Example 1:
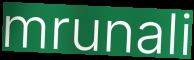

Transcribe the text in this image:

mrunali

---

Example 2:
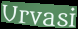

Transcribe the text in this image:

Urvasi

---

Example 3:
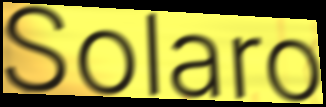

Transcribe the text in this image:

Solaro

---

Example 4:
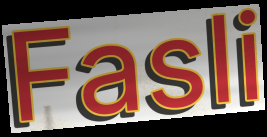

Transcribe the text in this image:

Fasli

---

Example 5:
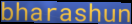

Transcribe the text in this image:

bharashun